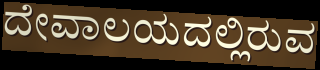
ದೇವಾಲಯದಲ್ಲಿರುವ